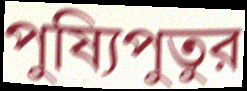
পুষ্যিপুতুর